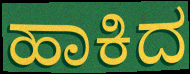
ಹಾಕಿದ